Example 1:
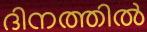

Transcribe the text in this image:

ദിനത്തിൽ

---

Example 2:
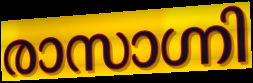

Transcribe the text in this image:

രാസാഗ്നി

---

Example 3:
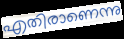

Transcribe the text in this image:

എതിരാണെന്നു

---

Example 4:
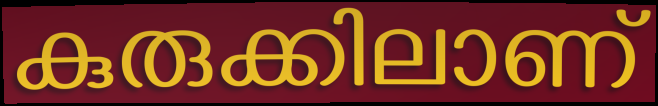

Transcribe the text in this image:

കുരുക്കിലാണ്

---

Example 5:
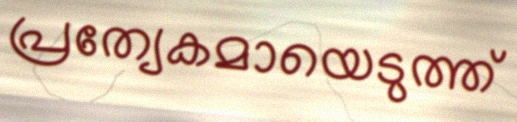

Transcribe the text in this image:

പ്രത്യേകമായെടുത്ത്